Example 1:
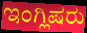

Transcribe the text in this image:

ಇಂಗ್ಲಿಷರು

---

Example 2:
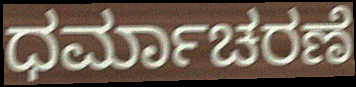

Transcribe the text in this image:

ಧರ್ಮಾಚರಣೆ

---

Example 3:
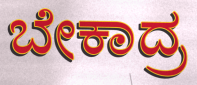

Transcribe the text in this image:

ಬೇಕಾದ್ರ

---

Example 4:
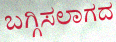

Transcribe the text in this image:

ಬಗ್ಗಿಸಲಾಗದ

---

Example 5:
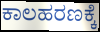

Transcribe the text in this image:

ಕಾಲಹರಣಕ್ಕೆ